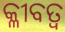
କ୍ଳୀବତ୍ବ